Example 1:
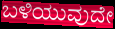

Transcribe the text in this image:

ಬಳಿಯುವುದೇ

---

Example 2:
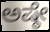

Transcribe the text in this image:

ಅಷ್ಠೇ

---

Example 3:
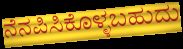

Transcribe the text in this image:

ನೆನಪಿಸಿಕೊಳ್ಳಬಹುದು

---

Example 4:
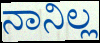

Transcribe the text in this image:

ನಾನಿಲ್ಲ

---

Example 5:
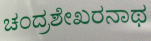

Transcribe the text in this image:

ಚಂದ್ರಶೇಖರನಾಥ